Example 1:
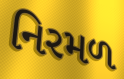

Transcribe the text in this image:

નિરમળ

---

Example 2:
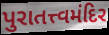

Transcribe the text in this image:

પુરાતત્ત્વમંદિર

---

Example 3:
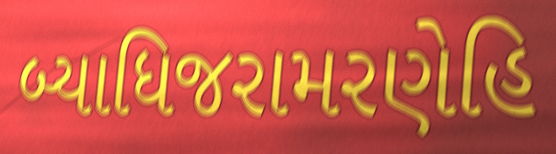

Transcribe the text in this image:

બ્યાધિજરામરણેહિ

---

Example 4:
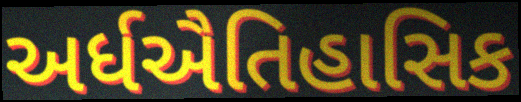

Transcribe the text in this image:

અર્ધઐતિહાસિક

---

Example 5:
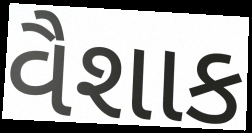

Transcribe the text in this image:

વૈશાક